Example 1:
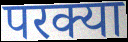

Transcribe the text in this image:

परक्या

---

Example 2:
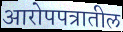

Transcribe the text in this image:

आरोपपत्रातील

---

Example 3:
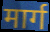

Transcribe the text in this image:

मार्ग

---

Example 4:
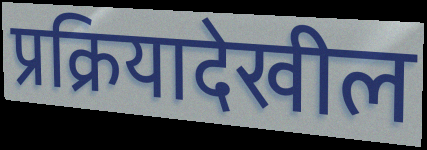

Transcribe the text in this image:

प्रक्रियादेखील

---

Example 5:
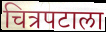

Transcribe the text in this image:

चित्रपटाला